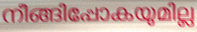
നീങ്ങിപ്പോകയുമില്ല